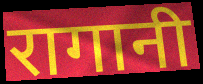
रागानी